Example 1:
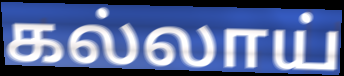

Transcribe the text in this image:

கல்லாய்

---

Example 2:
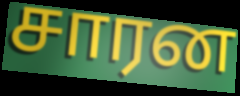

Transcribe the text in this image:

சாரன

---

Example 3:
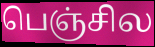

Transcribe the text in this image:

பெஞ்சில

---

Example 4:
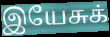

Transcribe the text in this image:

இயேசுக்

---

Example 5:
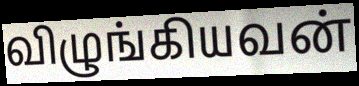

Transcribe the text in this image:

விழுங்கியவன்